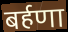
बर्हणा